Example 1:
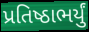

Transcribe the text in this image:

પ્રતિષ્ઠાભર્યું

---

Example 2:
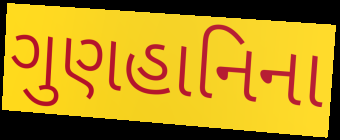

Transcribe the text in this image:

ગુણહાનિના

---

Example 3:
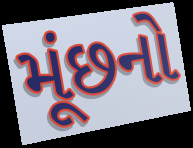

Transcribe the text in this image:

મૂંછનો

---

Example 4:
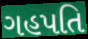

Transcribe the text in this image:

ગહપતિ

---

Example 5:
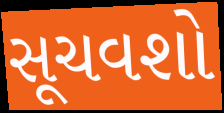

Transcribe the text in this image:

સૂચવશો